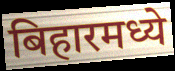
बिहारमध्ये